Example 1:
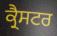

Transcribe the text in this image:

ਕ੍ਰੈਸਟਰ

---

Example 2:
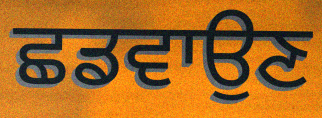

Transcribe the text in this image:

ਛਡਵਾਉਣ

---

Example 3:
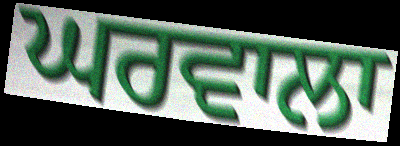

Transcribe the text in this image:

ਘਰਵਾਲਾ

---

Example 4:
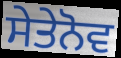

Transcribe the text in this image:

ਸੇਤੇਨੋਵ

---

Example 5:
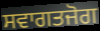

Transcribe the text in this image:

ਸਵਾਗਤਜੋਗ